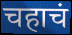
चहाचं